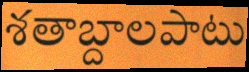
శతాబ్దాలపాటు